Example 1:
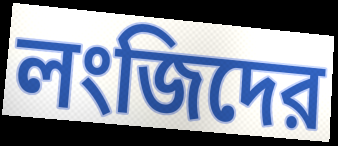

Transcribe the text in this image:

লংজিদের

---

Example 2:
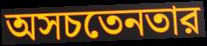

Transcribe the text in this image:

অসচতেনতার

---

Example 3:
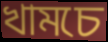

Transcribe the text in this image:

খামচে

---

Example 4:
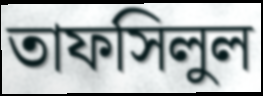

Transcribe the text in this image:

তাফসিলুল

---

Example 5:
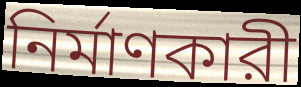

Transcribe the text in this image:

নির্মাণকারী